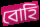
বোহি